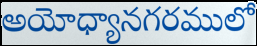
అయోధ్యానగరములో